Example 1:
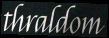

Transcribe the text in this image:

thraldom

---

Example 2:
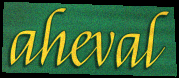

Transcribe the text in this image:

aheval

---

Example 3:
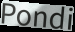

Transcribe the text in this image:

Pondi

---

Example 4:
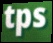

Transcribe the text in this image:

tps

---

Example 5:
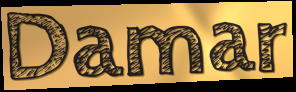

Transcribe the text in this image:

Damar